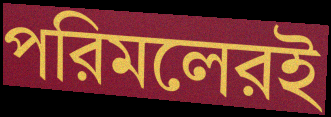
পরিমলেরই